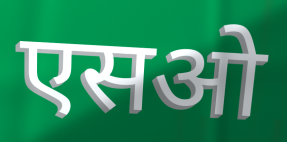
एसओ